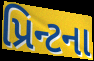
પ્રિન્ટના